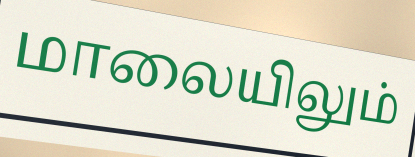
மாலையிலும்